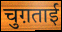
चुग़ताई